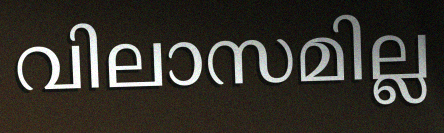
വിലാസമില്ല